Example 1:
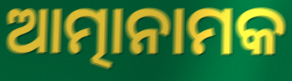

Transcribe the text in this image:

ଆତ୍ମାନାମକ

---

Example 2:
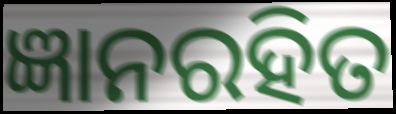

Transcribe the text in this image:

ଜ୍ଞାନରହିତ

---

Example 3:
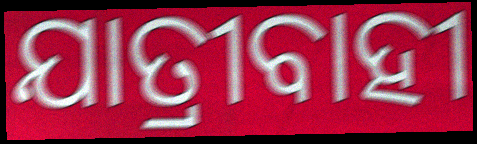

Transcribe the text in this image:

ଯାତ୍ରୀବାହୀ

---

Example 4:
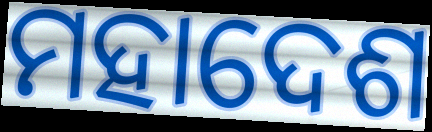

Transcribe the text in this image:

ମହାଦେଶ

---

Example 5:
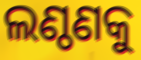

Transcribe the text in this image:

ଲଣ୍ଠଣକୁ